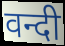
वन्दी